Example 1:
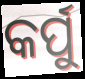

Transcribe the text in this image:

କର୍ପୁ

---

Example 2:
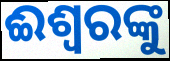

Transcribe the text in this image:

ଈଶ୍ଵରଙ୍କୁ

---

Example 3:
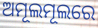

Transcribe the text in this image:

ଅମୂଲମୂଲରେ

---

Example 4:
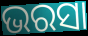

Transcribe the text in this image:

ଭରସା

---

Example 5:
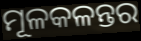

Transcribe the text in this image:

ମୂଳକଳନ୍ତର